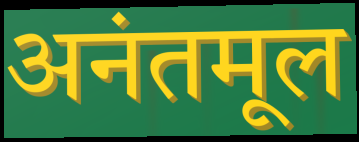
अनंतमूल